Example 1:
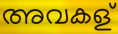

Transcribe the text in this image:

അവകള്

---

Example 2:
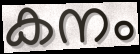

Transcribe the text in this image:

കനം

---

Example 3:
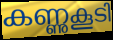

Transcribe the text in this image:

കണ്ണുകൂടി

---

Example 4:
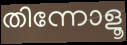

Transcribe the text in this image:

തിന്നോളൂ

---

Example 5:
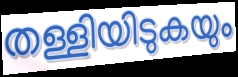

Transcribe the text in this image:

തള്ളിയിടുകയും